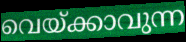
വെയ്ക്കാവുന്ന